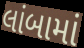
લાંબામાં